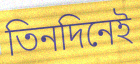
তিনদিনেই